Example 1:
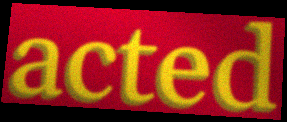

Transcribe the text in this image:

acted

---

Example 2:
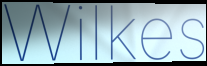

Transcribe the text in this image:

Wilkes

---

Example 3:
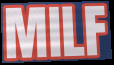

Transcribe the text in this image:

MILF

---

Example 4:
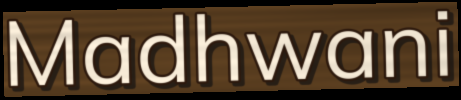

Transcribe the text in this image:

Madhwani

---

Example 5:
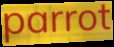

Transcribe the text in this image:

parrot